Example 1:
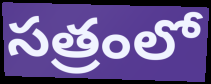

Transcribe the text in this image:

సత్రంలో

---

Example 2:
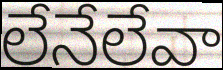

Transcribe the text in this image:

లేనేలేవా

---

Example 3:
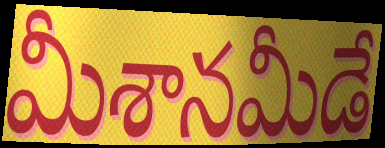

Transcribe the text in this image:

మీశానమీడే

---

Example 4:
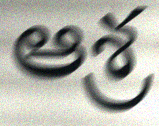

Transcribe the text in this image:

ఆశ్ర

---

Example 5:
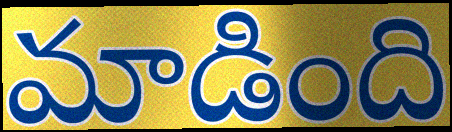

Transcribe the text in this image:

మాడింది